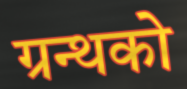
ग्रन्थको